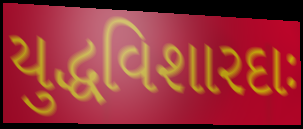
યુદ્ધવિશારદાઃ